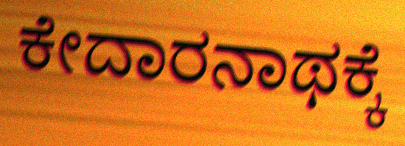
ಕೇದಾರನಾಥಕ್ಕೆ